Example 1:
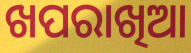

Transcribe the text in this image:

ଖପରାଖିଆ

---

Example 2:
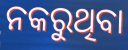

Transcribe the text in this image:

ନକରୁଥିବା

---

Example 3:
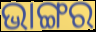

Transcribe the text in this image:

ଭାଙ୍ଗର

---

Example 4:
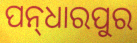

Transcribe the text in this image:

ପନ୍‌ଧାରପୁର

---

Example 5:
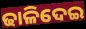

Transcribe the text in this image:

ଢାଳିଦେଇ